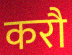
करौ